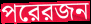
পরেরজন